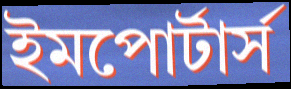
ইমপোর্টার্স